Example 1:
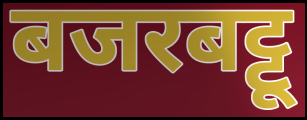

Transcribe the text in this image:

बजरबट्टू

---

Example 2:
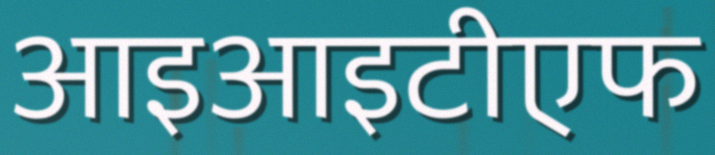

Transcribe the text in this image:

आइआइटीएफ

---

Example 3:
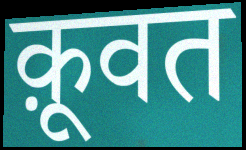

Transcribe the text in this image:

क़ूवत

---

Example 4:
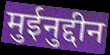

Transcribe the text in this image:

मुईनुद्दीन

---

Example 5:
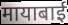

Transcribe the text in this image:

मायाबाई